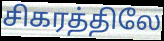
சிகரத்திலே